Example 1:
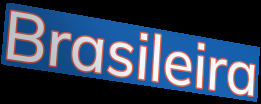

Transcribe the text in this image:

Brasileira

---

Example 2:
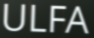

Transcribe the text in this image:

ULFA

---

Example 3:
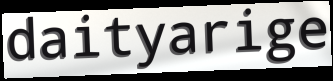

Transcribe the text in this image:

daityarige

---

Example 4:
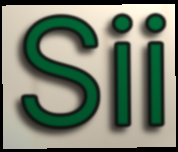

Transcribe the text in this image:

Sii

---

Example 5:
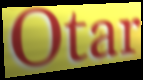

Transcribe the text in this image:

Otar